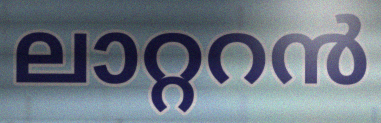
ലാറ്ററൻ